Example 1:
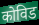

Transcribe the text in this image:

कोविड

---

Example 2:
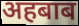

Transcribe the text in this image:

अहबाब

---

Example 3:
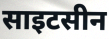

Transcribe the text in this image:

साइटसीन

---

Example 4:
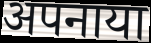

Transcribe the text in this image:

अपनाया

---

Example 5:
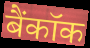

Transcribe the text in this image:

बैंकॉक